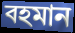
বহমান